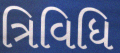
ત્રિવિધિ